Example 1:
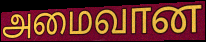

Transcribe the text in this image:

அமைவான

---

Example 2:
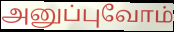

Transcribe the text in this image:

அனுப்புவோம்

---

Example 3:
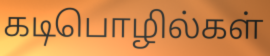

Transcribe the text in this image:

கடிபொழில்கள்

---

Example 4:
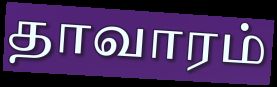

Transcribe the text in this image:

தாவாரம்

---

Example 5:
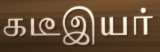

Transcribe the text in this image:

கடீஇயர்